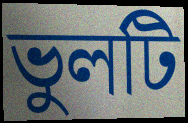
ভুলটি